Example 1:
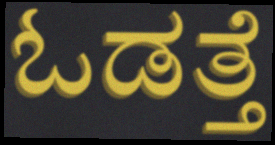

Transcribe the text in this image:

ಓಡತ್ತೆ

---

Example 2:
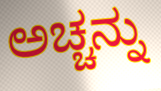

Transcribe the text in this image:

ಅಚ್ಚನ್ನು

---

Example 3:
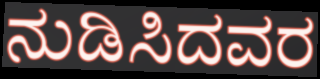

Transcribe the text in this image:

ನುಡಿಸಿದವರ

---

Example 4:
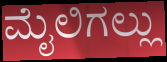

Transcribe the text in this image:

ಮೈಲಿಗಲ್ಲು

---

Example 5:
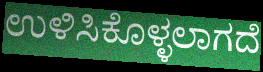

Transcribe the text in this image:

ಉಳಿಸಿಕೊಳ್ಳಲಾಗದೆ